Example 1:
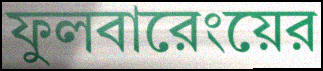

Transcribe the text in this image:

ফুলবারেংয়ের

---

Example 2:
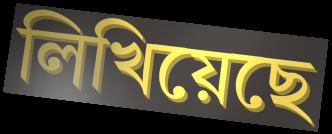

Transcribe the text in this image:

লিখিয়েছে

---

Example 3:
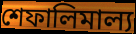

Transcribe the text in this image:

শেফালিমাল্য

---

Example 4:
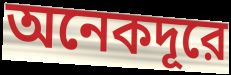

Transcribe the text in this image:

অনেকদূরে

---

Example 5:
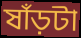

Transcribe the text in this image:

ষাঁড়টা